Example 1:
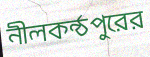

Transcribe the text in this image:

নীলকন্ঠপুরের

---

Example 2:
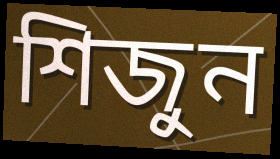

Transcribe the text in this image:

শিজুন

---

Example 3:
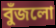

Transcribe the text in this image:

বুঁজলো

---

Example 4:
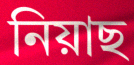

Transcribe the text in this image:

নিয়াছ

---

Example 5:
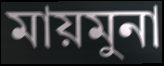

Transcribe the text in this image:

মায়মুনা